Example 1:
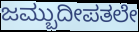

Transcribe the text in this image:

ಜಮ್ಬುದೀಪತಲೇ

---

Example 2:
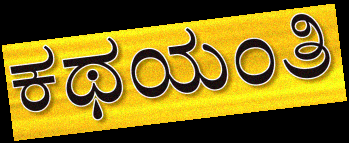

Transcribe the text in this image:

ಕಥಯಂತಿ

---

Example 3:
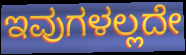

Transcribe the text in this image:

ಇವುಗಳಲ್ಲದೇ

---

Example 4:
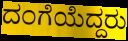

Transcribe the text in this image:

ದಂಗೆಯೆದ್ದರು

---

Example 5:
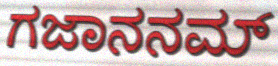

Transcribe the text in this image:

ಗಜಾನನಮ್